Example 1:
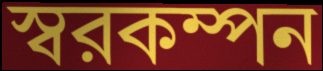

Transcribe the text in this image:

স্বরকম্পন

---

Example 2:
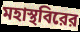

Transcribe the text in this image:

মহাস্থবিরের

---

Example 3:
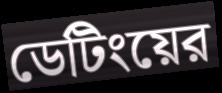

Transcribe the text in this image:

ডেটিংয়ের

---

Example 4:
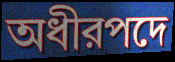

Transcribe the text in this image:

অধীরপদে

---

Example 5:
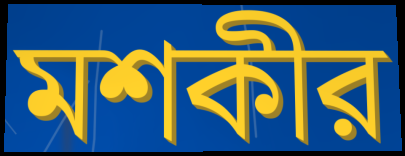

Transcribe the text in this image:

মশকীর